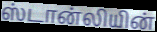
ஸ்டான்லியின்